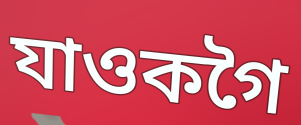
যাওকগৈ